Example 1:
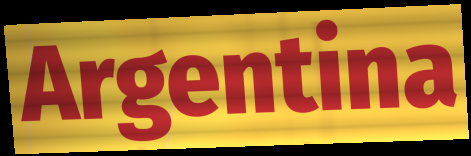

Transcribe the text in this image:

Argentina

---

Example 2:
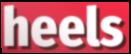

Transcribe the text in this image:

heels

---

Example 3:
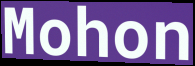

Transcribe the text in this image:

Mohon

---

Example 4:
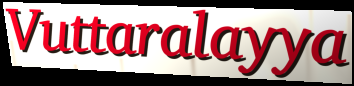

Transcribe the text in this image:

Vuttaralayya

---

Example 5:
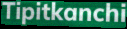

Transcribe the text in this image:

Tipitkanchi